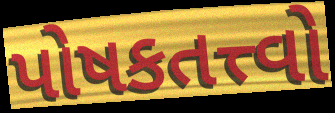
પોષકતત્ત્વો